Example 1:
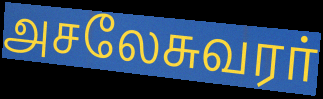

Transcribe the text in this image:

அசலேசுவரர்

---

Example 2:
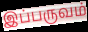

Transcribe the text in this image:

இப்பருவம்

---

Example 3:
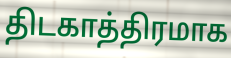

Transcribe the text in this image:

திடகாத்திரமாக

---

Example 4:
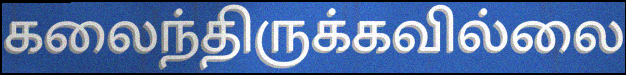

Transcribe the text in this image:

கலைந்திருக்கவில்லை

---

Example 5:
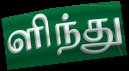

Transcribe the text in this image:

ளிந்து